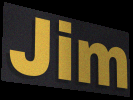
Jim